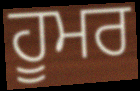
ਹੂਮਰ